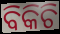
ବିକିଚି